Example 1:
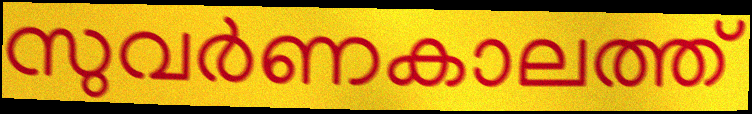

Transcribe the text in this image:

സുവർണകാലത്ത്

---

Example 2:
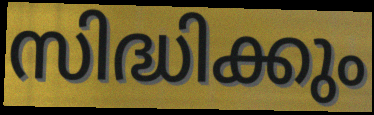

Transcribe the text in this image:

സിദ്ധിക്കും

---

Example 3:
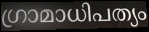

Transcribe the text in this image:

ഗ്രാമാധിപത്യം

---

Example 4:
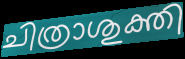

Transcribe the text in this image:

ചിത്രാശുക്തി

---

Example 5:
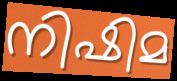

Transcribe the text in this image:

നിഷിമ